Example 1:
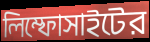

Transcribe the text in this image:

লিম্ফোসাইটের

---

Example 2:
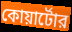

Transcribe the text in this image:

কোয়ার্টোর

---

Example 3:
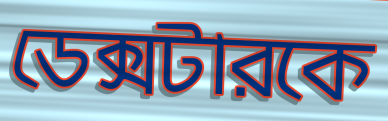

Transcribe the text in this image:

ডেক্সটারকে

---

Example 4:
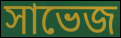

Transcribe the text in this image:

সাভেজ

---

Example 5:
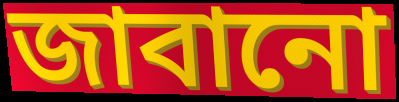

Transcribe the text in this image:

জাবানো